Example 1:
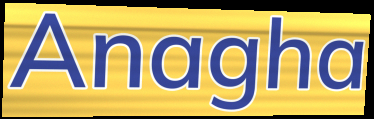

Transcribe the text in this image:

Anagha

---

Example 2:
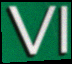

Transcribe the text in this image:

VI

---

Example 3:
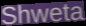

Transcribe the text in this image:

Shweta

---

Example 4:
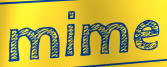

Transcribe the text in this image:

mime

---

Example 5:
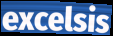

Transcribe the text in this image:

excelsis